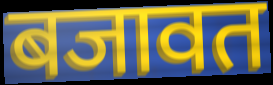
बजावत